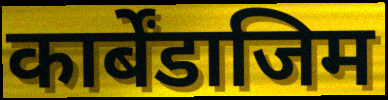
कार्बेंडाजिम